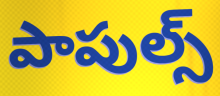
పాపుల్స్